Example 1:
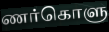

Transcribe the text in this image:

ணர்கொளு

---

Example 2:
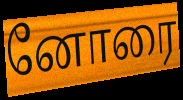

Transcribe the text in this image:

னோரை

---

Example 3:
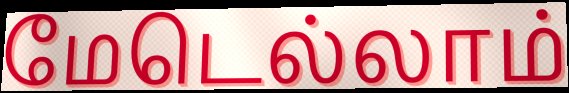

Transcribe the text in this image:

மேடெல்லாம்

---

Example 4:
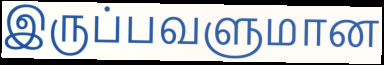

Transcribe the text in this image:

இருப்பவளுமான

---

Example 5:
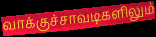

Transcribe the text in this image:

வாக்குச்சாவடிகளிலும்